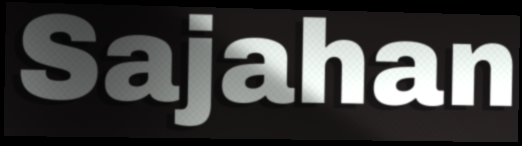
Sajahan